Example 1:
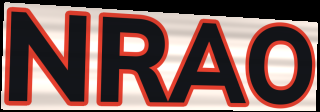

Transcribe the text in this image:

NRAO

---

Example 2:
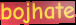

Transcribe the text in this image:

bojhate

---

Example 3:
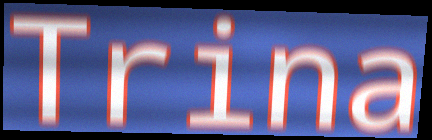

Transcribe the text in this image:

Trina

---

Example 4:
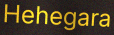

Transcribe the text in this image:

Hehegara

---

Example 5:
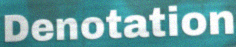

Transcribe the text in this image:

Denotation